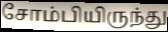
சோம்பியிருந்து